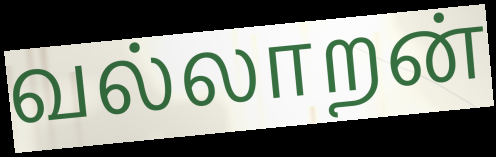
வல்லாறன்